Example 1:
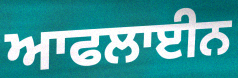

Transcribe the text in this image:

ਆਫਲਾਈਨ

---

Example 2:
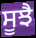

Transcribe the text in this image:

ਸੂਝੈ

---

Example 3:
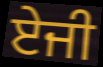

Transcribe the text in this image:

ਏਜੀ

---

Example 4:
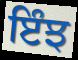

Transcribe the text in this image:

ਇੰਝ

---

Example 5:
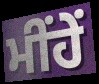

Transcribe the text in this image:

ਮੀਂਹੇਂ